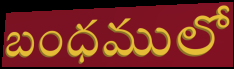
బంధములో